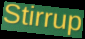
Stirrup